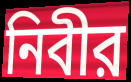
নিবীর